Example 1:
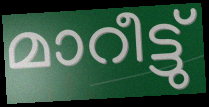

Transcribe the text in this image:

മാറീട്ടു്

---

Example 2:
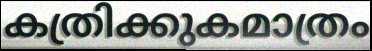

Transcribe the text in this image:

കത്രിക്കുകമാത്രം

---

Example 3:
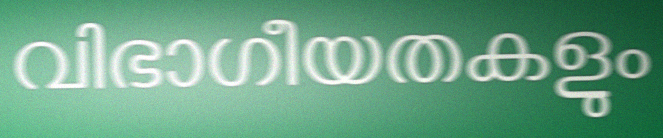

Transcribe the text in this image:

വിഭാഗീയതകളും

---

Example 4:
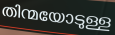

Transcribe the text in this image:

തിന്മയോടുള്ള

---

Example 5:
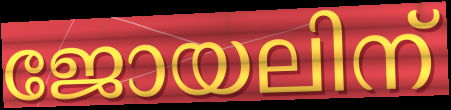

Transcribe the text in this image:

ജോയലിന്